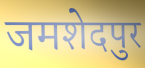
जमशेदपुर